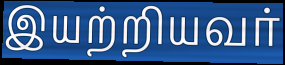
இயற்றியவர்